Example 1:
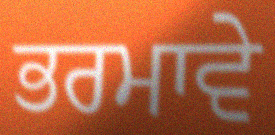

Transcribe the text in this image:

ਭਰਮਾਵੇ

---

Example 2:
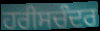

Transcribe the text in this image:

ਹਰੀਸਚੰਦਰ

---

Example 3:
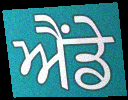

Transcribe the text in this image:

ਐਂਡੇ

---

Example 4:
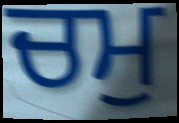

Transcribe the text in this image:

ਚਮੁ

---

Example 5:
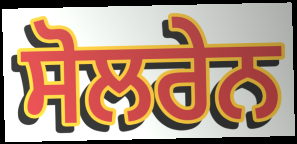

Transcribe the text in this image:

ਸੋਲਰੇਨ